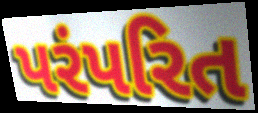
પરંપરિત